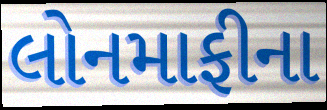
લોનમાફીના